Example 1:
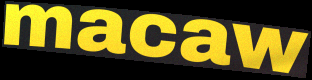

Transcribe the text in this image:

macaw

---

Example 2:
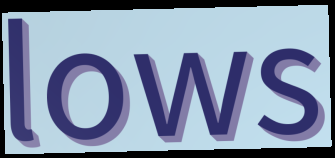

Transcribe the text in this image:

lows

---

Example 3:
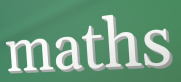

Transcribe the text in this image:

maths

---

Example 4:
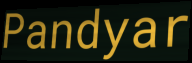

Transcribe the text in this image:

Pandyar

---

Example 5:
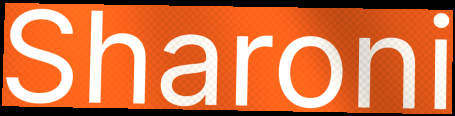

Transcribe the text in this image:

Sharoni